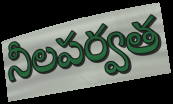
నీలపర్వత